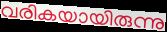
വരികയായിരുന്നു